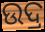
ଉଦ୍ର